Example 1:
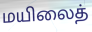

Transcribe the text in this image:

மயிலைத்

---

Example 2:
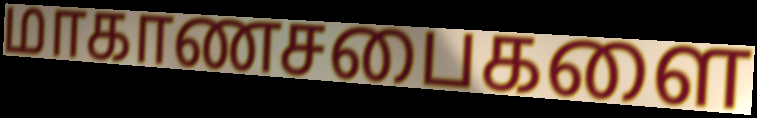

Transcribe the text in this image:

மாகாணசபைகளை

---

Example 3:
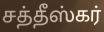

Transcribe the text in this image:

சத்தீஸ்கர்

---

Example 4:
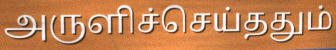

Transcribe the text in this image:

அருளிச்செய்ததும்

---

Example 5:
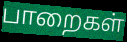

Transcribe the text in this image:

பாறைகள்